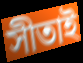
সীতাই